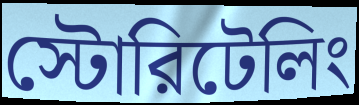
স্টোরিটেলিং